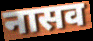
नासव